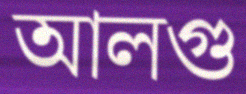
আলগু